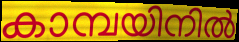
കാമ്പയിനിൽ